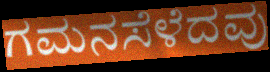
ಗಮನಸೆಳೆದವು